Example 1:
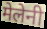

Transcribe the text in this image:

मेलेनी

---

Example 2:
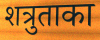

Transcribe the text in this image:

शत्रुताका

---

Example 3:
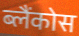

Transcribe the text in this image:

ब्लैंकोस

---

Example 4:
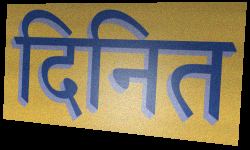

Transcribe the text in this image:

दिनित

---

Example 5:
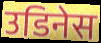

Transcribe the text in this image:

उडिनेस